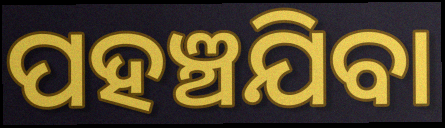
ପହଞ୍ଚଯିବା